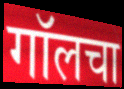
गॉलचा